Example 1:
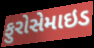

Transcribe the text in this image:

ફુરોસેમાઇડ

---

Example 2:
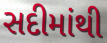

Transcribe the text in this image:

સદીમાંથી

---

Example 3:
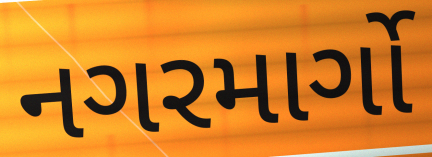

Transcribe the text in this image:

નગરમાર્ગો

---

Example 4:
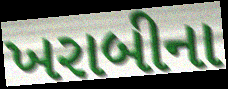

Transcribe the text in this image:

ખરાબીના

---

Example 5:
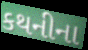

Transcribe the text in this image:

કથનીના